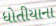
ધોતીયાના